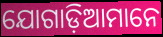
ଯୋଗାଡ଼ିଆମାନେ